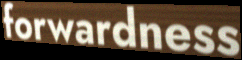
forwardness